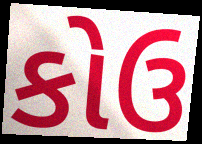
કોઉ